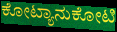
ಕೋಟ್ಯಾನುಕೋಟಿ